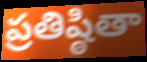
ప్రతిష్ఠితా